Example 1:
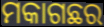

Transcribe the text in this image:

ମକାଗଛର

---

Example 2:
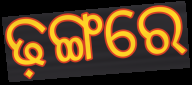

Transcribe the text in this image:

ଢ଼ଙ୍ଗରେ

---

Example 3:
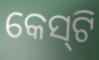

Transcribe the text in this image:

କେସ୍‌ଟି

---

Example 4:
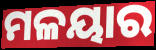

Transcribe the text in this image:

ମଳୟାର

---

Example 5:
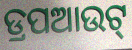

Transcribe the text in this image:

ଡ୍ରପଆଉଟ୍